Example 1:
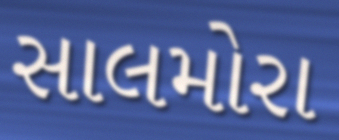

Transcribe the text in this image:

સાલમોરા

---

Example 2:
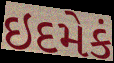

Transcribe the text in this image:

ઇદમેકં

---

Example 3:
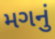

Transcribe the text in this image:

મગનું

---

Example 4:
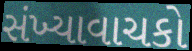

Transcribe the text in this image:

સંખ્યાવાચકો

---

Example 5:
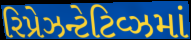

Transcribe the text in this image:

રિપ્રેઝન્ટેટિવ્ઝમાં